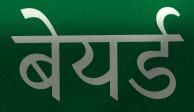
बेयर्ड